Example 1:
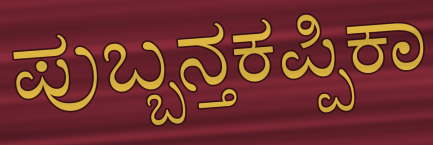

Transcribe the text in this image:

ಪುಬ್ಬನ್ತಕಪ್ಪಿಕಾ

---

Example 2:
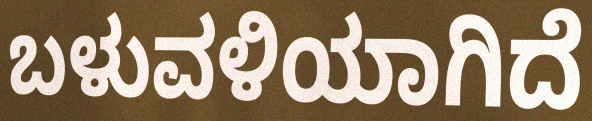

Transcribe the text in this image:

ಬಳುವಳಿಯಾಗಿದೆ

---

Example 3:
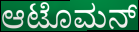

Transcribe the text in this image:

ಆಟೊಮನ್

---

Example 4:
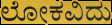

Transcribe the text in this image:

ಲೋಕವಿದು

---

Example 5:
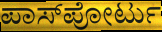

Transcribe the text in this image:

ಪಾಸ್‌ಪೋರ್ಟು